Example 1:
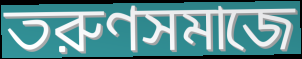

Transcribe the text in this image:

তরুণসমাজে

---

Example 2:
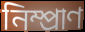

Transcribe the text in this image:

নিম্প্রাণ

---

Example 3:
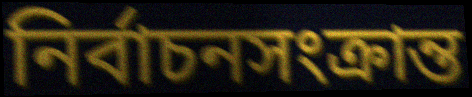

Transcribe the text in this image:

নির্বাচনসংক্রান্ত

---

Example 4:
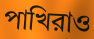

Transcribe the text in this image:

পাখিরাও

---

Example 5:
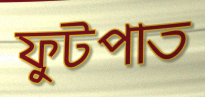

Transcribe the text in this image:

ফুটপাত